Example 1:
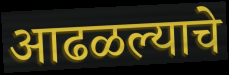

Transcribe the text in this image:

आढळल्याचे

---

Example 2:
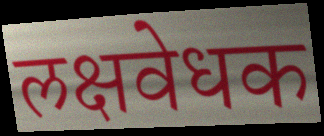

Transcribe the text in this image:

लक्षवेधक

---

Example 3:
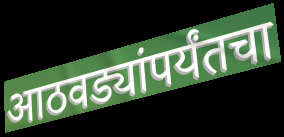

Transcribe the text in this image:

आठवड्यांपर्यंतचा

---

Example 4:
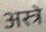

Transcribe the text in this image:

अस्त्रे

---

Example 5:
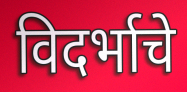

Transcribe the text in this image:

विदर्भाचे